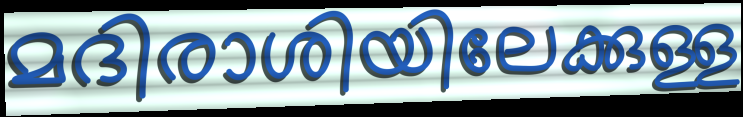
മദിരാശിയിലേക്കുള്ള